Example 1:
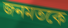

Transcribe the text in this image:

জনমতকে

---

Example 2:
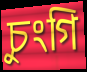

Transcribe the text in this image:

চুংগি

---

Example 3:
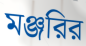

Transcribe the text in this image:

মঞ্জরির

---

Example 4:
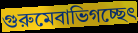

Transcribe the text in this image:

গুরুমেবাভিগচ্ছেৎ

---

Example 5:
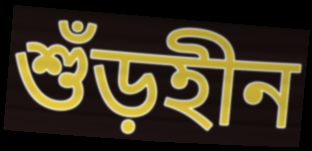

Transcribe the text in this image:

শুঁড়হীন